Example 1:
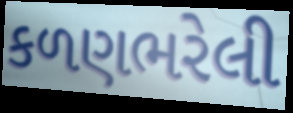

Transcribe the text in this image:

કળણભરેલી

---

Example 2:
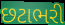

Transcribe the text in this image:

છટાભરી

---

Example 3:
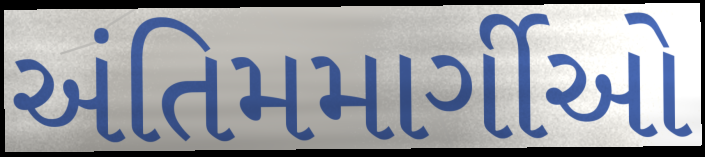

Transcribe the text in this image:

અંતિમમાર્ગીઓ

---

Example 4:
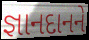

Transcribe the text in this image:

જ્ઞાનદાનને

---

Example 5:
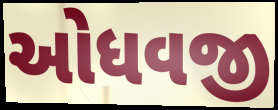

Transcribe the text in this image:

ઓધવજી